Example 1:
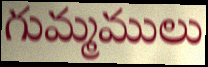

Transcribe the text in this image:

గుమ్మములు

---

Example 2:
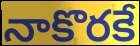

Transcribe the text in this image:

నాకొరకే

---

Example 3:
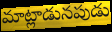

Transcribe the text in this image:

మాట్లాడునపుడు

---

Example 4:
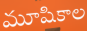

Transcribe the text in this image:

మూషికాల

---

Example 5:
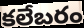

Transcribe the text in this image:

కలేబరం